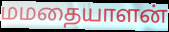
மமதையாளன்